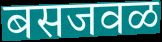
बसजवळ